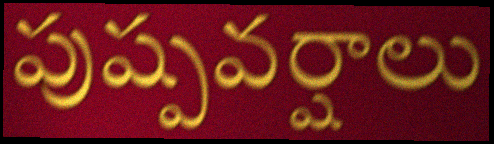
పుష్పవర్షాలు